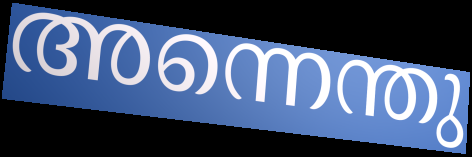
അന്നെന്തു